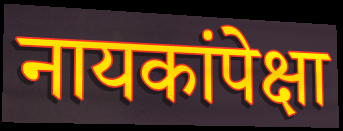
नायकांपेक्षा